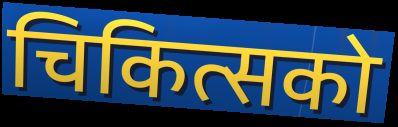
चिकित्सको